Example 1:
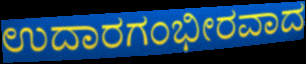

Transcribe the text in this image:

ಉದಾರಗಂಭೀರವಾದ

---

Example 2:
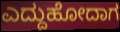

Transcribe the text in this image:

ಎದ್ದುಹೋದಾಗ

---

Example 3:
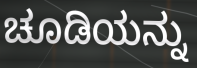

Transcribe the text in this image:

ಚೂಡಿಯನ್ನು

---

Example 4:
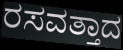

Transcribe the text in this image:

ರಸವತ್ತಾದ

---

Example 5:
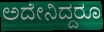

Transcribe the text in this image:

ಅದೇನಿದ್ದರೂ